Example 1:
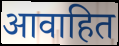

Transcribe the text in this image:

आवाहित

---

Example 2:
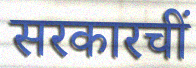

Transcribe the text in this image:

सरकारचीं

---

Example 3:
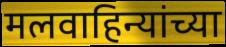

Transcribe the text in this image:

मलवाहिन्यांच्या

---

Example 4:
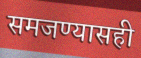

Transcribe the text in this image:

समजण्यासही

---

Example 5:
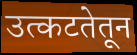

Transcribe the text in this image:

उत्कटतेतून